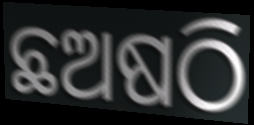
ଛଅଷଠି